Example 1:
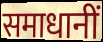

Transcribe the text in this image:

समाधानीं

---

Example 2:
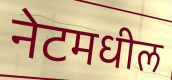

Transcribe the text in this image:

नेटमधील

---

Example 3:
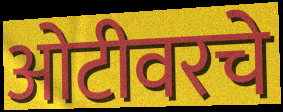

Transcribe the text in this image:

ओटीवरचे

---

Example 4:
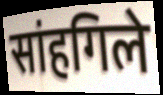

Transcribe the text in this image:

सांहगिले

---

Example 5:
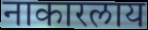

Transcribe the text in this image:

नाकारलाय